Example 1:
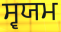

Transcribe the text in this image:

ਸ੍ਵਯਮ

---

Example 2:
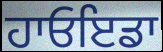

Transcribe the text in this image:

ਹਾਓਇਡਾ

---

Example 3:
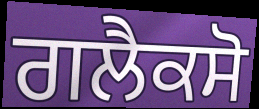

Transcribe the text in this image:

ਗਲੈਕਸੋ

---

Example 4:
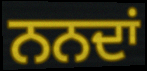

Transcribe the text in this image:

ਨਨਦਾਂ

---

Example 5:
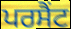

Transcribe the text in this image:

ਪਰਸੈਂਟ